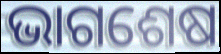
ଭାଗଶେଷ